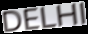
DELHI